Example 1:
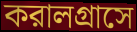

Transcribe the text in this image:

করালগ্রাসে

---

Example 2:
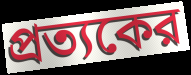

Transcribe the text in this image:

প্রত্যকের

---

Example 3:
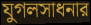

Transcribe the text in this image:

যুগলসাধনার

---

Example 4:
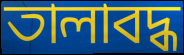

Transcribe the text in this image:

তালাবদ্ধ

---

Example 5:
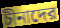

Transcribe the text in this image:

চীনাদের